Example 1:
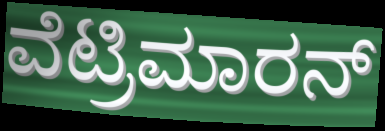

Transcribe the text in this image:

ವೆಟ್ರಿಮಾರನ್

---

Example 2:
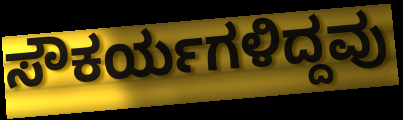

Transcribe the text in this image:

ಸೌಕರ್ಯಗಳಿದ್ದವು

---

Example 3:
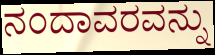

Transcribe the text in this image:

ನಂದಾವರವನ್ನು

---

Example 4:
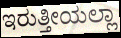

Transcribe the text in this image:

ಇರುತ್ತೀಯಲ್ಲಾ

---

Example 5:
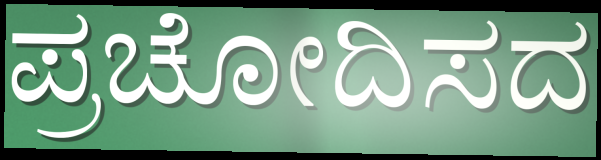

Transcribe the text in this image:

ಪ್ರಚೋದಿಸದ